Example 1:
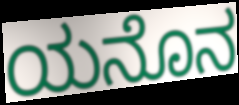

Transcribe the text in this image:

ಯನೊನ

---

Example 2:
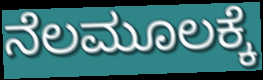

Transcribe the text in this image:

ನೆಲಮೂಲಕ್ಕೆ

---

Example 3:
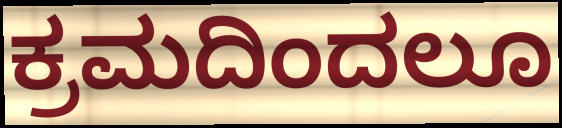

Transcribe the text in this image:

ಕ್ರಮದಿಂದಲೂ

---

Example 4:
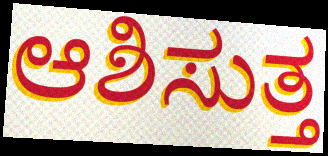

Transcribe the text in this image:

ಆಶಿಸುತ್ತ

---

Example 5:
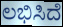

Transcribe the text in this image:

ಲಭಿಸಿದೆ